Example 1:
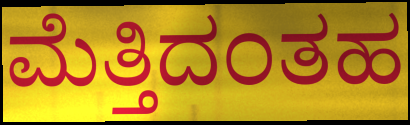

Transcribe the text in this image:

ಮೆತ್ತಿದಂತಹ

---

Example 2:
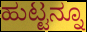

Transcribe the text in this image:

ಹುಟ್ಟನ್ನೂ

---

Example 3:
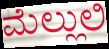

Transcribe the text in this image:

ಮೆಲ್ಲುಲಿ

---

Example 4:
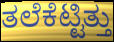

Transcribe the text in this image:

ತಲೆಕೆಟ್ಟಿತ್ತು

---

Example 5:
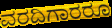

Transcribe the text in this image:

ವರದಿಗಾರರೂ